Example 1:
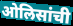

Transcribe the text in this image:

ओलिसांची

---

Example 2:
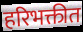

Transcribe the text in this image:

हरिभक्तीत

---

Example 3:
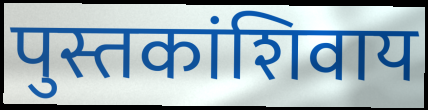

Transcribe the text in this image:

पुस्तकांशिवाय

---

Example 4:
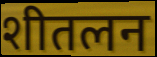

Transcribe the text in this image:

शीतलन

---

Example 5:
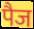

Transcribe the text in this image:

पैज